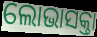
ଲୋଭାସକ୍ତା